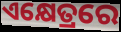
ଏକ୍ଷେତ୍ରରେ